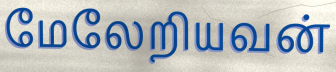
மேலேறியவன்